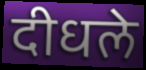
दीधले